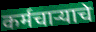
कर्मचाऱ्याचे